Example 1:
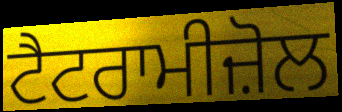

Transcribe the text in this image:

ਟੈਟਰਾਮੀਜ਼ੋਲ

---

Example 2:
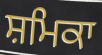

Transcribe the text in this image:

ਸ਼ਮਿਕਾ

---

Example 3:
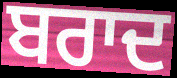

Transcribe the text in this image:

ਬਰਾਦ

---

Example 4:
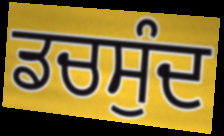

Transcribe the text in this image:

ਡਚਸੁੰਦ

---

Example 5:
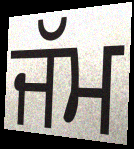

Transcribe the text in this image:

ਜੱਮ